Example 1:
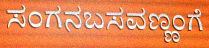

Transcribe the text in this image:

ಸಂಗನಬಸವಣ್ಣಂಗೆ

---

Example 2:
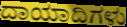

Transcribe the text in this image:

ದಾಯಾದಿಗಳು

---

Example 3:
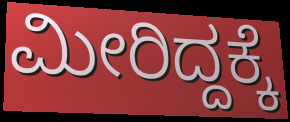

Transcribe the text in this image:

ಮೀರಿದ್ದಕ್ಕೆ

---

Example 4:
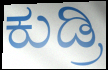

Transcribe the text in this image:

ಕುಡ್ರಿ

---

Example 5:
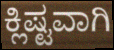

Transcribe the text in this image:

ಕ್ಲಿಷ್ಟವಾಗಿ